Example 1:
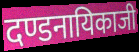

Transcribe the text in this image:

दण्डनायिकाजी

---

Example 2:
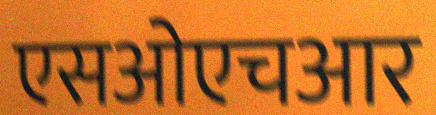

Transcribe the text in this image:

एसओएचआर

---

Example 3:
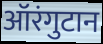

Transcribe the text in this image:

ऑरंगुटान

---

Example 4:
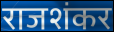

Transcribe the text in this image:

राजशंकर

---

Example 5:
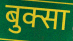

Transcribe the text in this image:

बुक्सा